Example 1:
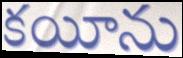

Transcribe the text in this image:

కయీను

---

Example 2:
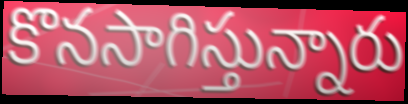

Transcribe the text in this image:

కొనసాగిస్తున్నారు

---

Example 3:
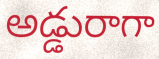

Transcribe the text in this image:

అడ్డురాగా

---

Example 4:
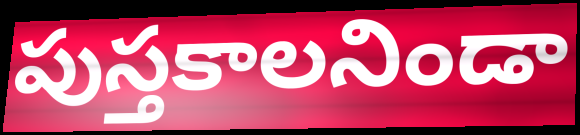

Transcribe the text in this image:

పుస్తకాలనిండా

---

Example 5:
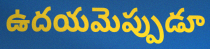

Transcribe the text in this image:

ఉదయమెప్పుడూ